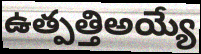
ఉత్పత్తిఅయ్యే